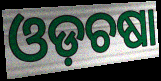
ଓଡ଼ଚଷା